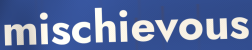
mischievous